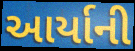
આર્યાની